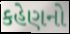
કહેણનો